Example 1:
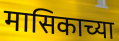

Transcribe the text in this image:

मासिकाच्या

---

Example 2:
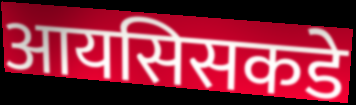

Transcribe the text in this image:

आयसिसकडे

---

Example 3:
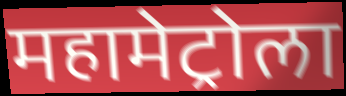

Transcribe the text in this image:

महामेट्रोला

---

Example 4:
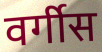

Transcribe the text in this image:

वर्गीस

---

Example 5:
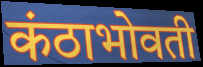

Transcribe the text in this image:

कंठाभोवती